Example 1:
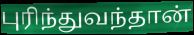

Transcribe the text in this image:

புரிந்துவந்தான்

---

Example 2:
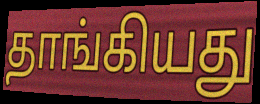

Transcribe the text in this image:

தாங்கியது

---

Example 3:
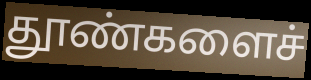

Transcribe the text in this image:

தூண்களைச்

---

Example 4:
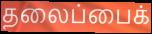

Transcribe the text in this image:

தலைப்பைக்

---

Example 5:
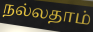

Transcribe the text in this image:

நல்லதாம்